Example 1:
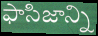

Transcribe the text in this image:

ఫాసిజాన్ని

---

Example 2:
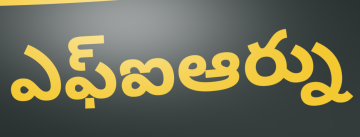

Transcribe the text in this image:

ఎఫ్ఐఆర్ను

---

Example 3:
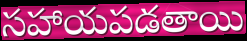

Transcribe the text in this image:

సహాయపడతాయి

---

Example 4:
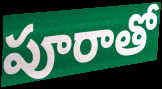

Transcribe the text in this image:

పూరాతో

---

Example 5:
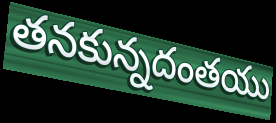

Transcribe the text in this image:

తనకున్నదంతయు